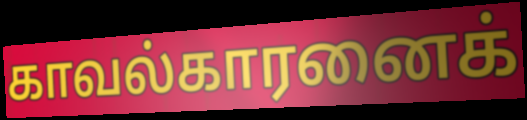
காவல்காரனைக்